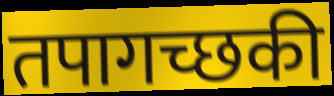
तपागच्छकी